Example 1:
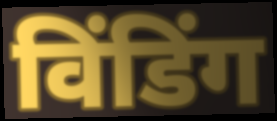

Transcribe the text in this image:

विंडिंग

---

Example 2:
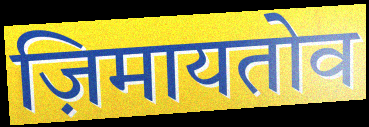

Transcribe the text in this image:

ज़िमायतोव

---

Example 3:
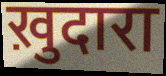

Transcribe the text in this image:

ख़ुदारा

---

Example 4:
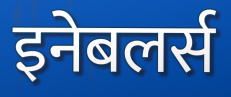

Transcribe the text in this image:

इनेबलर्स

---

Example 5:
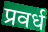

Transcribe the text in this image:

प्रवर्ध